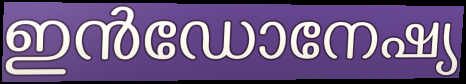
ഇൻഡോനേഷ്യ